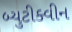
બ્યુટીક્વીન